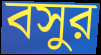
বসুর